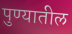
पुण्यातील